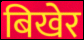
बिखेर